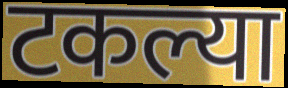
टकल्या